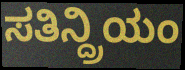
ಸತಿನ್ದ್ರಿಯಂ